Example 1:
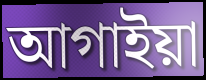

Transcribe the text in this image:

আগাইয়া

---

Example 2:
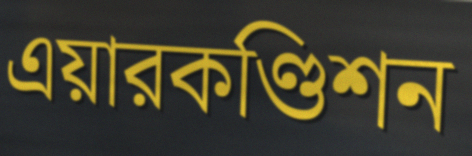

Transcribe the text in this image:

এয়ারকণ্ডিশন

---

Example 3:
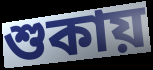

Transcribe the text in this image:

শুকায়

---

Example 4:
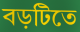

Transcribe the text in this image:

বড়টিতে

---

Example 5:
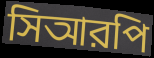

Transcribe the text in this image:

সিআরপি